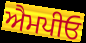
ਐਮਪੀਓ